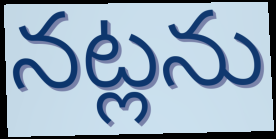
నట్లను